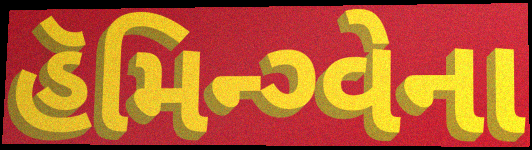
હૅમિન્ગ્વેના